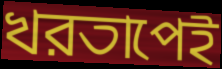
খরতাপেই